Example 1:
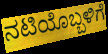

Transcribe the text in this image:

ನಟಿಯೊಬ್ಬಳಿಗೆ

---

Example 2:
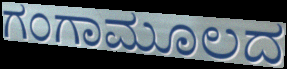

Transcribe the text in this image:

ಗಂಗಾಮೂಲದ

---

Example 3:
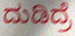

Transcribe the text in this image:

ದುಡಿದ್ರೆ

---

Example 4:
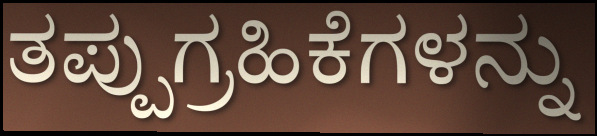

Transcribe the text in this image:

ತಪ್ಪುಗ್ರಹಿಕೆಗಳನ್ನು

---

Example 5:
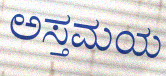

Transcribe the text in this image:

ಅಸ್ತಮಯ